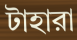
টাহারা